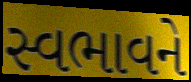
સ્વભાવને